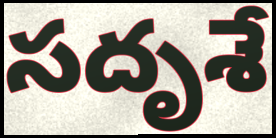
సదృశే